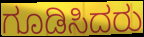
ಗೂಡಿಸಿದರು